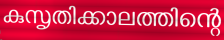
കുസൃതിക്കാലത്തിന്റെ